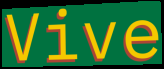
Vive